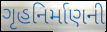
ગૃહનિર્માણની